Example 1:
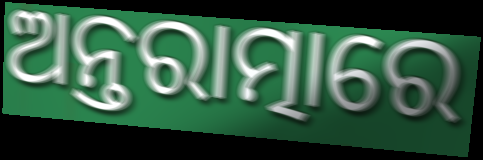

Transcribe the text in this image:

ଅନ୍ତରାତ୍ମାରେ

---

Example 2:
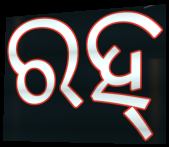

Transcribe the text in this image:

ରହ୍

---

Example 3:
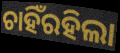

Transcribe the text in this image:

ଚାହିଁରହିଲା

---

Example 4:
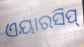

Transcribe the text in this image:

ଏୟାରସିପ୍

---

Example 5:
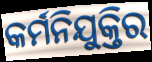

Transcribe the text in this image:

କର୍ମନିଯୁକ୍ତିର